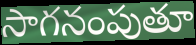
సాగనంపుతూ